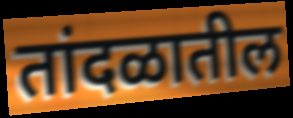
तांदळातील